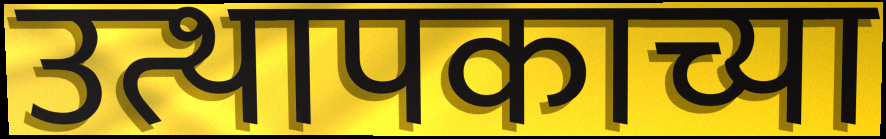
उत्थापकाच्या